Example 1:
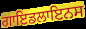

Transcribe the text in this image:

ਗਾਇਡਲਾਇਨਸ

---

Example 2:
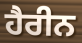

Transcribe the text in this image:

ਹੈਰੀਨ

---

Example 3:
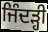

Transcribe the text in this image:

ਜਿੰਦੜ੍ਹੀ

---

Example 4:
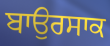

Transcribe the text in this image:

ਬਾਉਰਸਾਕ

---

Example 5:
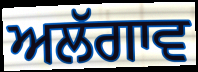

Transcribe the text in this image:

ਅਲੱਗਾਵ